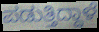
ಪಡುತ್ತಿದ್ದಾಳೆ